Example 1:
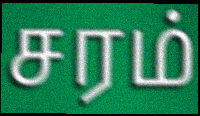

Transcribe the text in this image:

சரம்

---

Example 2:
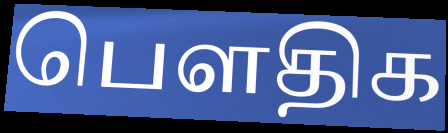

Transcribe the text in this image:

பெளதிக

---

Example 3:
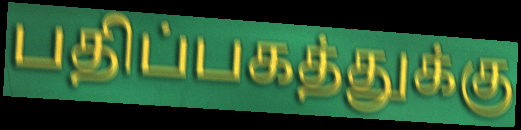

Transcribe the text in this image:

பதிப்பகத்துக்கு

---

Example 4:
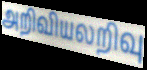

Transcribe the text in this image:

அறிவியலறிவு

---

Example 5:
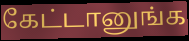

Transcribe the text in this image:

கேட்டானுங்க